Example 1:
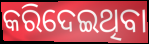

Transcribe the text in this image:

କରିଦେଇଥିବା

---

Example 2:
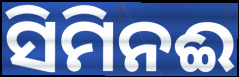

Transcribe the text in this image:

ସିମିନଈ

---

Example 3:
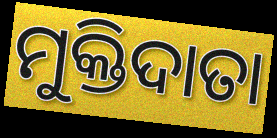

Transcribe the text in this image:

ମୁକ୍ତିଦାତା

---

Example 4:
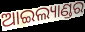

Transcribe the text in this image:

ଆଇଲ୍ୟାଣ୍ଡର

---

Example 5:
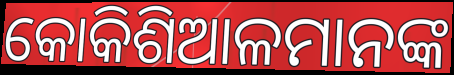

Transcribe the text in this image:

କୋକିଶିଆଳମାନଙ୍କ